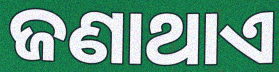
ଜଣାଥାଏ